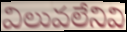
విలువలేనివి